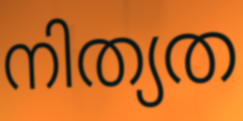
നിത്യത